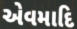
એવમાદિ